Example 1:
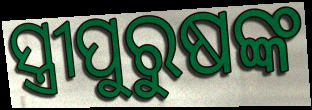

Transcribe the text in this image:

ସ୍ତ୍ରୀପୁରୁଷଙ୍କ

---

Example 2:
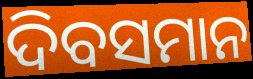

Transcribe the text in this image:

ଦିବସମାନ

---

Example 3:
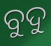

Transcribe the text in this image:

ବୁଦୁ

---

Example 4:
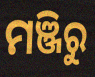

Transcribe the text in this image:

ମଞ୍ଜିରୁ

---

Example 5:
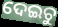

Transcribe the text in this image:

ଦେଇଚୁ